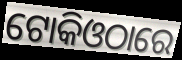
ଟୋକିଓଠାରେ